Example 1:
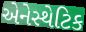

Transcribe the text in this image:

એનેસ્થેટિક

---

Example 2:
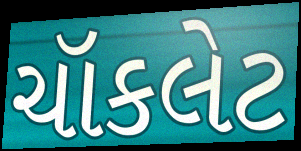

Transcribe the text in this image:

ચૉકલેટ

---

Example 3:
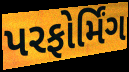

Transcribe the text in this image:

પરફોર્મિંગ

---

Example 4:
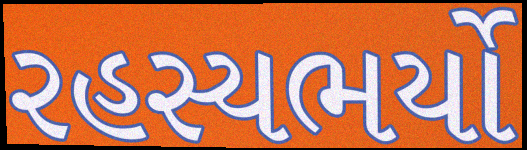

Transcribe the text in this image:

રહસ્યભર્યો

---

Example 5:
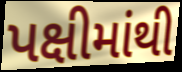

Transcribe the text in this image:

પક્ષીમાંથી